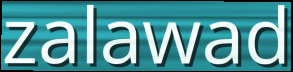
zalawad